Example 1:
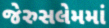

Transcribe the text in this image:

જેરુસલેમમાં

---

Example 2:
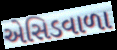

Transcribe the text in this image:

એસિડવાળા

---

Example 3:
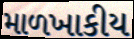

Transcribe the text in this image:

માળખાકીય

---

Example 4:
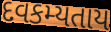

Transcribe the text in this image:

દવકમ્યતાય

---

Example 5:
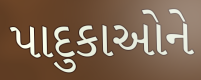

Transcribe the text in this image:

પાદુકાઓને